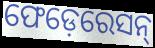
ଫେଡ଼େରେସନ୍